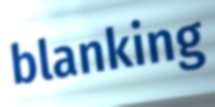
blanking